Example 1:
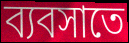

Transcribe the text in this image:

ব্যবসাতে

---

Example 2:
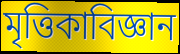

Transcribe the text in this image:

মৃত্তিকাবিজ্ঞান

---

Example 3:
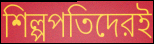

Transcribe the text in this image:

শিল্পপতিদেরই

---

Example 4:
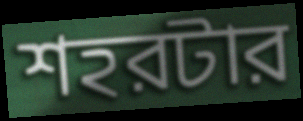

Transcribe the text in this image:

শহরটার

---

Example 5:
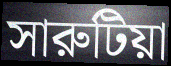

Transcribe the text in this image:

সারুটিয়া